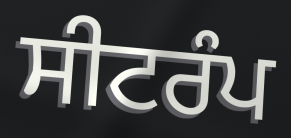
ਸੀਟਰੰਪ